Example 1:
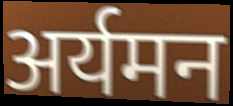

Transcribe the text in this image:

अर्यमन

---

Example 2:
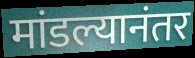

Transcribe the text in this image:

मांडल्यानंतर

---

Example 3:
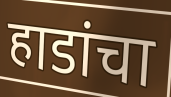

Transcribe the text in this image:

हाडांचा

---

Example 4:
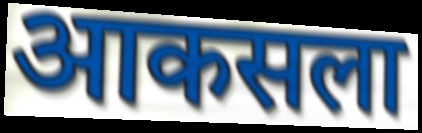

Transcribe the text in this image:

आकसला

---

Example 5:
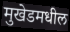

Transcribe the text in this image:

मुखेडमधील